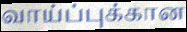
வாய்ப்புக்கான